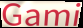
Gami